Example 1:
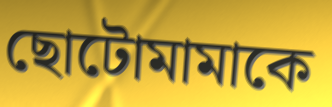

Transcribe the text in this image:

ছোটোমামাকে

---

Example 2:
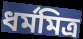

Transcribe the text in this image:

ধর্মমিত্র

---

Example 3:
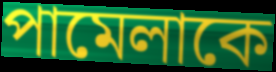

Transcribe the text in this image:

পামেলাকে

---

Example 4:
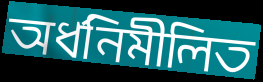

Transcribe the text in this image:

অর্ধনিমীলিত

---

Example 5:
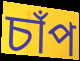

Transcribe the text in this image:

চাঁপ